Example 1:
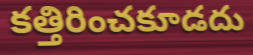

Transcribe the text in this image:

కత్తిరించకూడదు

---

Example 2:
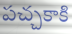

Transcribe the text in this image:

పచ్చకాకి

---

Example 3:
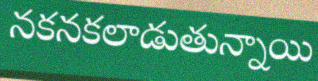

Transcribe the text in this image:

నకనకలాడుతున్నాయి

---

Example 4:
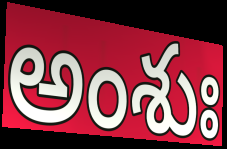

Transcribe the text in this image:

అంశుః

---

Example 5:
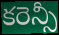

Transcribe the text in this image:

కరెన్సీ